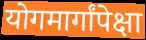
योगमार्गांपेक्षा